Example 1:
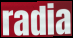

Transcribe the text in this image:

radia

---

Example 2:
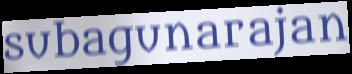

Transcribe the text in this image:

subagunarajan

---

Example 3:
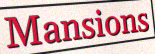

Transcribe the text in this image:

Mansions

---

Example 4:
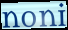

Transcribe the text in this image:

noni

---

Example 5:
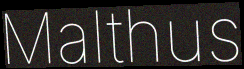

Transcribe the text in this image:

Malthus